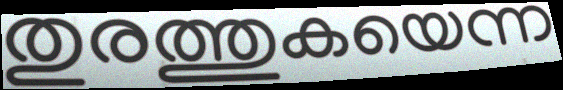
തുരത്തുകയെന്ന